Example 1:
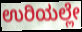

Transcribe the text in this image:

ಉರಿಯಲ್ಲೇ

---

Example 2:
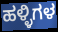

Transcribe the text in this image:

ಹಳ್ಳಿಗಳ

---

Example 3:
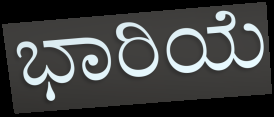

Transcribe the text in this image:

ಭಾರಿಯೆ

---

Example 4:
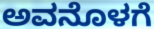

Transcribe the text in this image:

ಅವನೊಳಗೆ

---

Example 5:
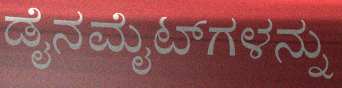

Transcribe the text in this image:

ಡೈನಮೈಟ್‌ಗಳನ್ನು